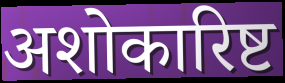
अशोकारिष्ट